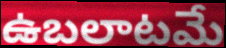
ఉబలాటమే